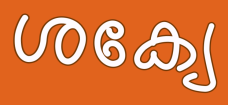
ശക്യേ